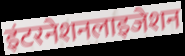
इंटरनेशनलाइजेशन